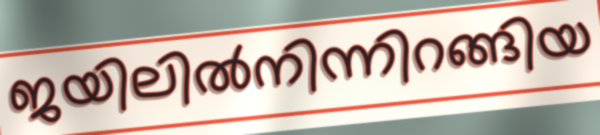
ജയിലിൽനിന്നിറങ്ങിയ